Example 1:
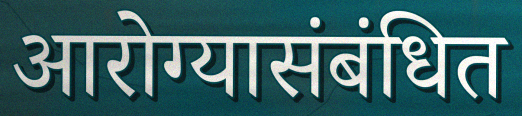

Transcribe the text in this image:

आरोग्यासंबंधित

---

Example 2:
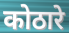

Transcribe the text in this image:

कोठारे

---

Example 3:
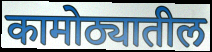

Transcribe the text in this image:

कामोठ्यातील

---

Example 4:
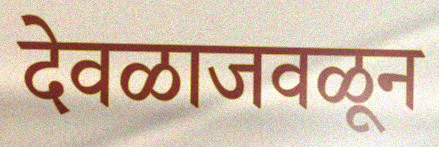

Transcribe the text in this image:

देवळाजवळून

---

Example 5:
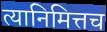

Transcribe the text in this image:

त्यानिमित्तच